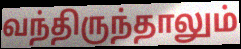
வந்திருந்தாலும்